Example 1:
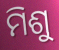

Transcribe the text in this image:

ମିଶୁ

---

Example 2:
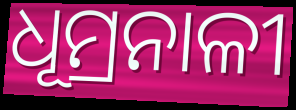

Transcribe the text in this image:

ଧୂମ୍ରନାଳୀ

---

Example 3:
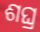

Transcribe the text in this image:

ଶଘ୍ର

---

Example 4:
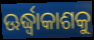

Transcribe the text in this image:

ଊର୍ଦ୍ଧ୍ୱାକାଶକୁ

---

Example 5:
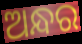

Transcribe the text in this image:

ଅନ୍ଧର